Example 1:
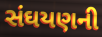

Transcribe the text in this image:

સંઘયણની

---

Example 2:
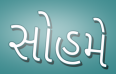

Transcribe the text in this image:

સોહમે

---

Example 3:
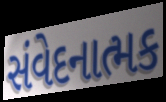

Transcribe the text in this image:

સંવેદનાત્મક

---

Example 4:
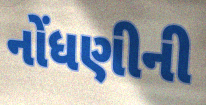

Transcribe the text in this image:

નોંધણીની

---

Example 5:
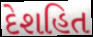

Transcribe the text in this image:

દેશહિત